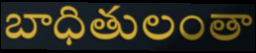
బాధితులంతా